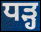
ਧੜ੍ਹ